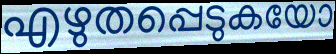
എഴുതപ്പെടുകയോ